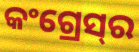
କଂଗ୍ରେସ୍‌ର